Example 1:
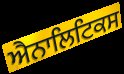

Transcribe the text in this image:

ਐਨਾਲਿਟਿਕਸ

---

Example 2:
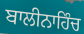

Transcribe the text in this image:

ਬਾਲੀਨਾਹਿੰਚ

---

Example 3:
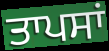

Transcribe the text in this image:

ਤਾਪਸਾਂ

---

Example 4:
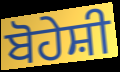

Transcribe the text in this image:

ਬੋਹੇਸ਼ੀ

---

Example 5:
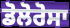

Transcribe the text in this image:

ਡੋਲੋਰੋਸਾ